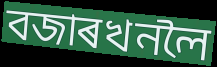
বজাৰখনলৈ